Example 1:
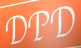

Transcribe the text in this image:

DPD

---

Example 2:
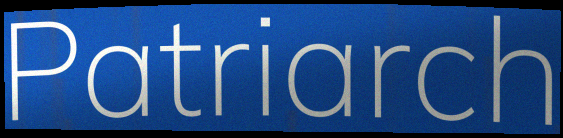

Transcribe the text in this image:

Patriarch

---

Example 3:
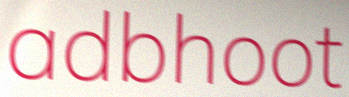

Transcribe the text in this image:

adbhoot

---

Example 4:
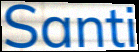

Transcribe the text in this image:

Santi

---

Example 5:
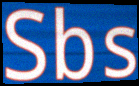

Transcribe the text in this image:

Sbs